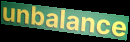
unbalance